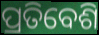
ପ୍ରତିବେଶି